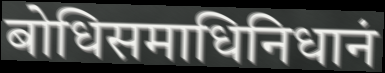
बोधिसमाधिनिधानं